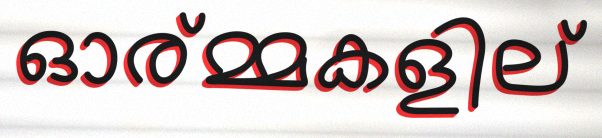
ഓര്മ്മകളില്